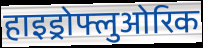
हाइड्रोफ्लुओरिक